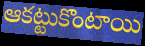
ఆకట్టుకొంటాయి